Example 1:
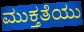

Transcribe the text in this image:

ಮುಕ್ತತೆಯು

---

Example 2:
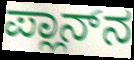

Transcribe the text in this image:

ಪ್ಲಾನ್‌ನ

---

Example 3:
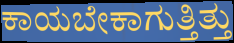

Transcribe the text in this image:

ಕಾಯಬೇಕಾಗುತ್ತಿತ್ತು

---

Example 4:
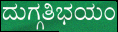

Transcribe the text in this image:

ದುಗ್ಗತಿಭಯಂ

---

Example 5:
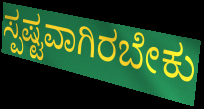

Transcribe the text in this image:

ಸ್ಪಷ್ಟವಾಗಿರಬೇಕು